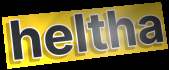
heltha